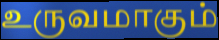
உருவமாகும்